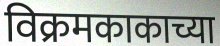
विक्रमकाकाच्या